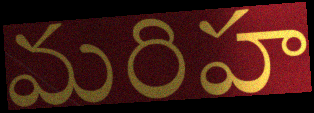
మరిహ